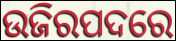
ଉଜିରପଦରେ